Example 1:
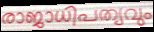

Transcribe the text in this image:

രാജാധിപത്യവും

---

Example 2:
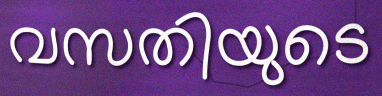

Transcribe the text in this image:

വസതിയുടെ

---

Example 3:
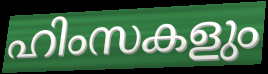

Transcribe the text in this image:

ഹിംസകളും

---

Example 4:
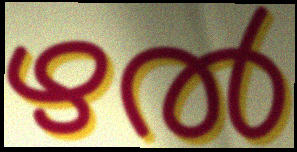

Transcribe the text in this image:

ഴൽ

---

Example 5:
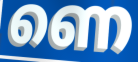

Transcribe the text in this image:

ണെ